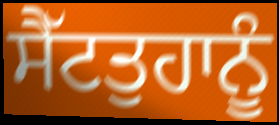
ਸੈੱਟਤੁਹਾਨੂੰ